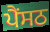
ਪੈਂਸਠ